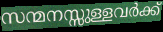
സന്മനസ്സുള്ളവർക്ക്